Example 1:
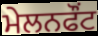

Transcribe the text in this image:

ਮੇਲਨਫੌਂਟ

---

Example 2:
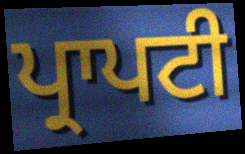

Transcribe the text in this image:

ਪ੍ਰਾਪਟੀ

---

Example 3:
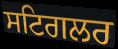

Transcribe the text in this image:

ਸਟਿਗਲਰ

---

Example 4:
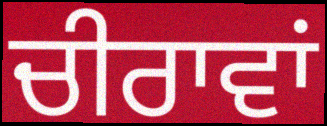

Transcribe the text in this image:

ਚੀਰਾਵਾਂ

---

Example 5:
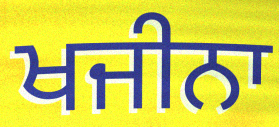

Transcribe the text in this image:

ਖਜੀਨਾ